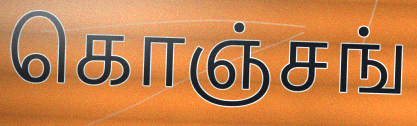
கொஞ்சங்